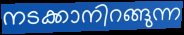
നടക്കാനിറങ്ങുന്ന